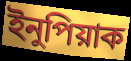
ইনুপিয়াক